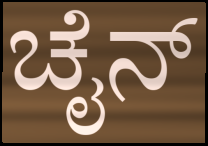
ಚೈನ್